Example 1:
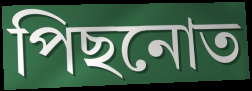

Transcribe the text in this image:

পিছনোত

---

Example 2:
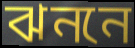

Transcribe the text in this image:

ঝননে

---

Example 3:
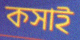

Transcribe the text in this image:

কসাই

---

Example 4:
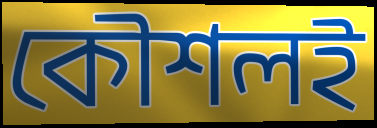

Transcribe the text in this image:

কৌশলই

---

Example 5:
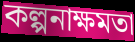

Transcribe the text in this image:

কল্পনাক্ষমতা